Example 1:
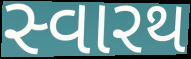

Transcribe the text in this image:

સ્વારથ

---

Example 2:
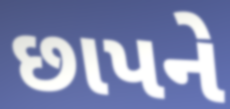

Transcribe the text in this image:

છાપને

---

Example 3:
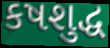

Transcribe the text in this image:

કષશુદ્ધ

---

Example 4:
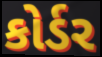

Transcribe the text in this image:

કોર્ડર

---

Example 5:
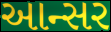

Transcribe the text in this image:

આન્સર